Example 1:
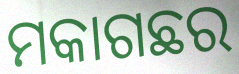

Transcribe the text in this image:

ମକାଗଛର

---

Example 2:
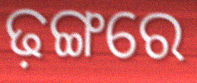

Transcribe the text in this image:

ଢ଼ଙ୍ଗରେ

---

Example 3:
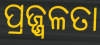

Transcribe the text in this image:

ପ୍ରଜ୍ଜ୍ୱଳତା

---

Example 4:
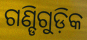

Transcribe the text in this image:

ଗଣ୍ଡିଗୁଡ଼ିକ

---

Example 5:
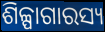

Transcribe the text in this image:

ଶିଳ୍ପାଗାରସ୍ୟ